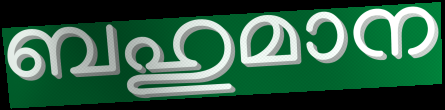
ബഹുമാന